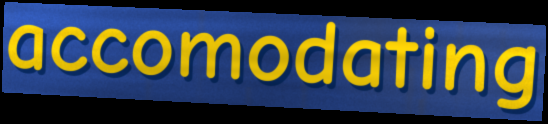
accomodating